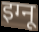
इग्‍नू